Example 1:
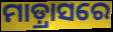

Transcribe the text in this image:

ମାଡ଼୍ରାସରେ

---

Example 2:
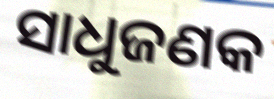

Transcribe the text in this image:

ସାଧୁଜଣକ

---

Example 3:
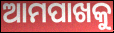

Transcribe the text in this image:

ଆମପାଖକୁ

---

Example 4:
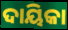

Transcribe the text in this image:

ଦାୟିକା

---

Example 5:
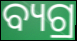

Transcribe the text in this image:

ବ୍ୟଗ୍ର